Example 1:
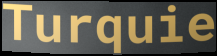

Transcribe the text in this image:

Turquie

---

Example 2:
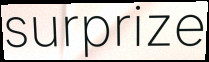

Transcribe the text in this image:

surprize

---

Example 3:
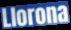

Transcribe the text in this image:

Llorona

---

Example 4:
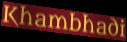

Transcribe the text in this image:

Khambhadi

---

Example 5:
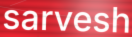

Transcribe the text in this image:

sarvesh